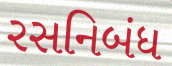
રસનિબંધ